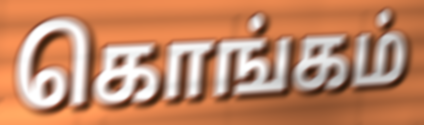
கொங்கம்